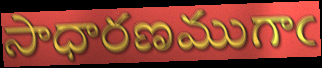
సాధారణముగాఁ